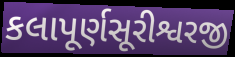
કલાપૂર્ણસૂરીશ્વરજી